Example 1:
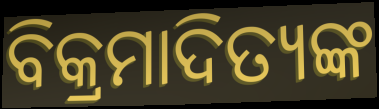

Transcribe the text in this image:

ବିକ୍ରମାଦିତ୍ୟଙ୍କ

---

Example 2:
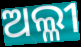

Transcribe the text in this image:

ଅଲ୍ଳୀ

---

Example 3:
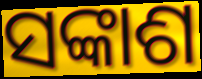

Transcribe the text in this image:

ସଙ୍କାଶ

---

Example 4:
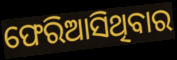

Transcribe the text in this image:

ଫେରିଆସିଥିବାର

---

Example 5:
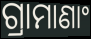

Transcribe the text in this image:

ଗ୍ରାମାଣାଂ